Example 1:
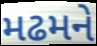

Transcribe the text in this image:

મઢમને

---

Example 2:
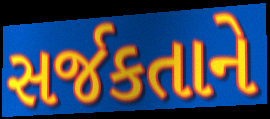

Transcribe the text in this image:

સર્જકતાને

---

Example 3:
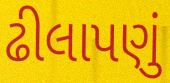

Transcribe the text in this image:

ઢીલાપણું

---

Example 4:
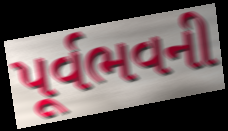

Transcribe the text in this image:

પૂર્વભવની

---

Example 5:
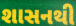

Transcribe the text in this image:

શાસનથી